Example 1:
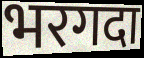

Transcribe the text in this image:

भरगदा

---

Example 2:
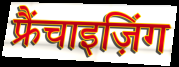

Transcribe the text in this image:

फ्रैंचाइज़िंग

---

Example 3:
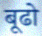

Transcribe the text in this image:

बूढो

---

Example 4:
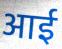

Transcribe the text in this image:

आई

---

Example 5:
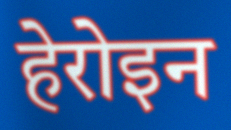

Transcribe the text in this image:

हेरोइन